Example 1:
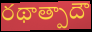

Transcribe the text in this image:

రథాత్పాదౌ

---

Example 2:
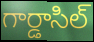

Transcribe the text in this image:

గార్డాసిల్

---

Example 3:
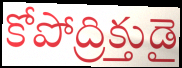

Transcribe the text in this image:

కోపోద్రిక్తుడై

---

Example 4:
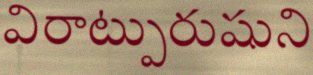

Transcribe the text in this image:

విరాట్పురుషుని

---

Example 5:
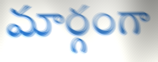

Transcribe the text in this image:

మార్గంగా